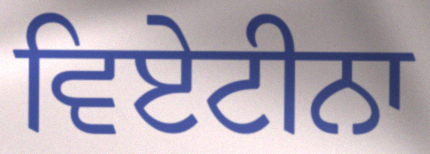
ਵਿਏਟੀਨਾ